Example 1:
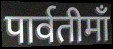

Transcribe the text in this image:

पार्वतीमाँ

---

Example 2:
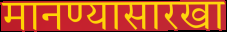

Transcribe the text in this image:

मानण्यासारखा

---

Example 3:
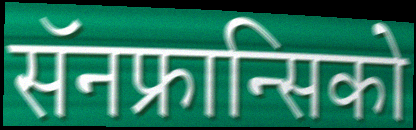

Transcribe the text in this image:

सॅनफ्रान्सिको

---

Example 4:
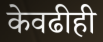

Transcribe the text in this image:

केवढीही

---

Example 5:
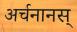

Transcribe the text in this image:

अर्चनानस्